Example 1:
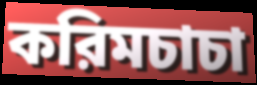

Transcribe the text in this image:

করিমচাচা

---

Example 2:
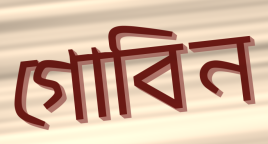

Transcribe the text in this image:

গোবিন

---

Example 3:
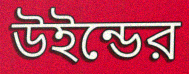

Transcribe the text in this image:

উইন্ডের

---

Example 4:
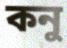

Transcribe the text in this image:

কনু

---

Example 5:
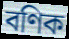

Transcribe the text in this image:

বণিক